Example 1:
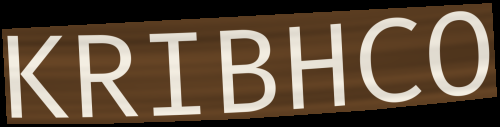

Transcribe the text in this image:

KRIBHCO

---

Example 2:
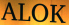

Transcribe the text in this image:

ALOK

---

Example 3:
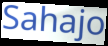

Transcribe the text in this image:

Sahajo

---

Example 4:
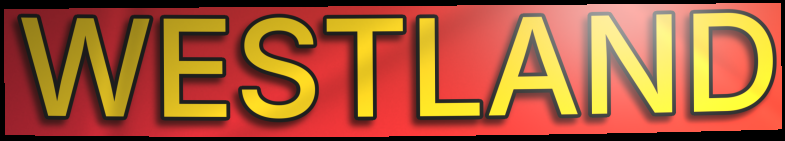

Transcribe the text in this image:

WESTLAND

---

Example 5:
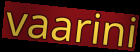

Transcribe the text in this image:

vaarini